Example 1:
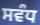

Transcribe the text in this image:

ਸਵੰਧ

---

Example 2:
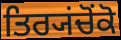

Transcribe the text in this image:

ਤਿਰ੍ਯਂਚੋਂਕੋ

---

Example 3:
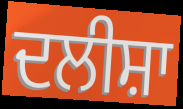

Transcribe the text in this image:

ਦਲੀਸ਼ਾ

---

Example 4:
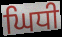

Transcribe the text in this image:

ਘਿਧੀ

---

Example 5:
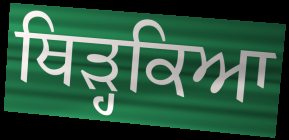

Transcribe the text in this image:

ਥਿੜ੍ਹਕਿਆ